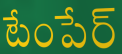
టేంపేర్